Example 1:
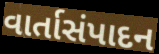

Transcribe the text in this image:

વાર્તાસંપાદન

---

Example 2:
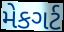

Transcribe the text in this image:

મેકગર્ટ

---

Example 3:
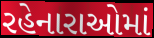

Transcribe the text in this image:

રહેનારાઓમાં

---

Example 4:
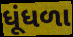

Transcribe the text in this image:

ધૂંધળા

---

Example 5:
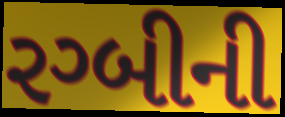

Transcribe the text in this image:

રગ્બીની